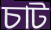
চাট